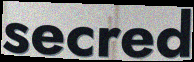
secred